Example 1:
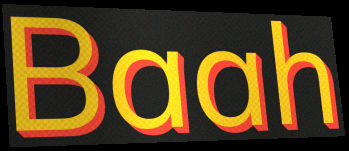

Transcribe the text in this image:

Baah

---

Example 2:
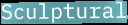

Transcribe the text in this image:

Sculptural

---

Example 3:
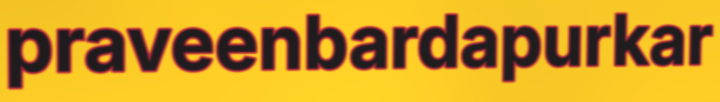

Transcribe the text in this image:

praveenbardapurkar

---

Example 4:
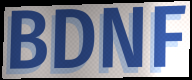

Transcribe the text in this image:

BDNF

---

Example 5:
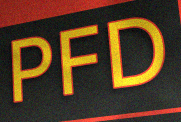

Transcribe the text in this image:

PFD